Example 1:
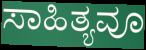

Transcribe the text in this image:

ಸಾಹಿತ್ಯವೂ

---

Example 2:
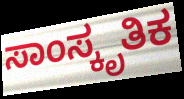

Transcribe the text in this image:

ಸಾಂಸ್ಕೃತಿಕ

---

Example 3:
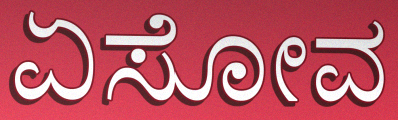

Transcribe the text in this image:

ಏಸೋವ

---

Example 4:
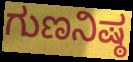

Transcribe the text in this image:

ಗುಣನಿಷ್ಠ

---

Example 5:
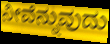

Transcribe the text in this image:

ನೀವೆನ್ನುವುದು